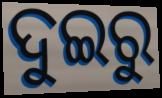
ଦୁଇରୁ